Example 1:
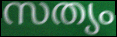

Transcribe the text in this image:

സത്യം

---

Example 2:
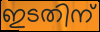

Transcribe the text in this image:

ഇടതിന്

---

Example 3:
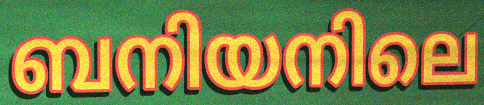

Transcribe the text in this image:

ബനിയനിലെ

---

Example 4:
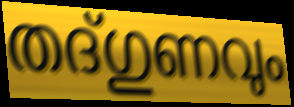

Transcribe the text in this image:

തദ്ഗുണവും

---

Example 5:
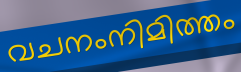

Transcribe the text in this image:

വചനംനിമിത്തം